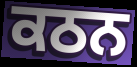
ਕਠਨ